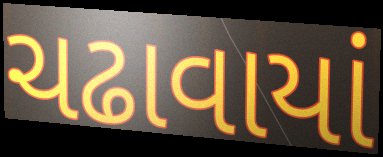
ચઢાવાયાં